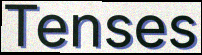
Tenses